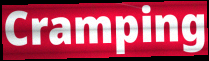
Cramping